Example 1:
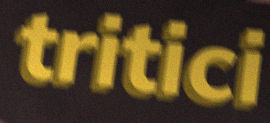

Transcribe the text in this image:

tritici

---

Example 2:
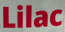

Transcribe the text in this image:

Lilac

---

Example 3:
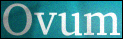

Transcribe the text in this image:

Ovum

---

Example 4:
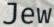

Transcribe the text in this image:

Jew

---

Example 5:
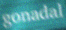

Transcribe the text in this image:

gonadal